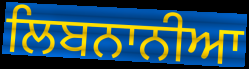
ਲਿਬਨਾਨੀਆ